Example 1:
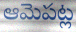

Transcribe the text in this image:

ఆమెపట్ల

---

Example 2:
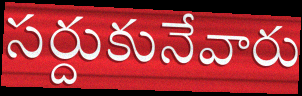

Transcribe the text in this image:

సర్దుకునేవారు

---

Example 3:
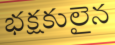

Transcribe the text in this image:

భక్షకులైన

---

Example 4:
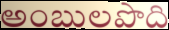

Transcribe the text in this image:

అంబులపొది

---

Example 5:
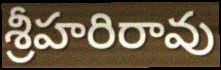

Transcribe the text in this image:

శ్రీహరిరావు